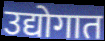
उद्योगात